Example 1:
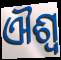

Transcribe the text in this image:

ଐଶ୍ୱ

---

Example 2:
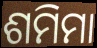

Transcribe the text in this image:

ଶମିମା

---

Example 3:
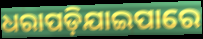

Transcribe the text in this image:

ଧରାପଡ଼ିଯାଇପାରେ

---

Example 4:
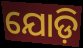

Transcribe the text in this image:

ଯୋଡ଼ି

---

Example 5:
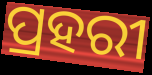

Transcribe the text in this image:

ପ୍ରହରୀ